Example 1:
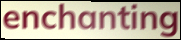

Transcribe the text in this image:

enchanting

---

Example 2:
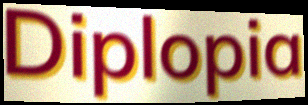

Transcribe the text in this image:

Diplopia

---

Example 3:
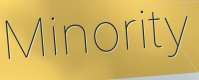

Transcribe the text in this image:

Minority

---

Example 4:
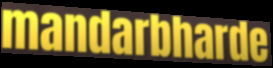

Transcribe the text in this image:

mandarbharde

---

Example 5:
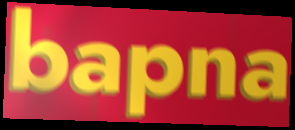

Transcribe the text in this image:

bapna